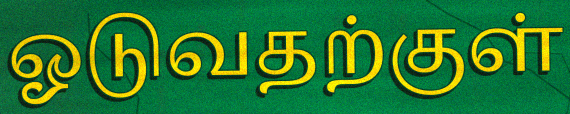
ஓடுவதற்குள்